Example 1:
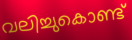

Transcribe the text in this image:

വലിച്ചുകൊണ്ട്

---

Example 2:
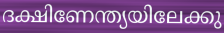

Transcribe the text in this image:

ദക്ഷിണേന്ത്യയിലേക്കു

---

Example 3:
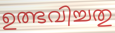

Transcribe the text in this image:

ഉത്ഭവിച്ചതു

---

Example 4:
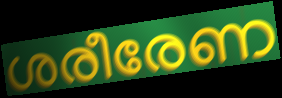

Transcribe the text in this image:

ശരീരേണ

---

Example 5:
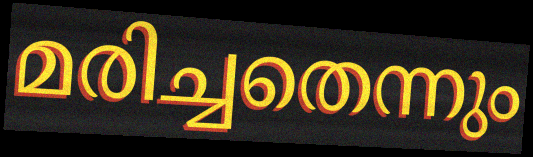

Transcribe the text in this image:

മരിച്ചതെന്നും